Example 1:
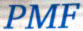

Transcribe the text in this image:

PMF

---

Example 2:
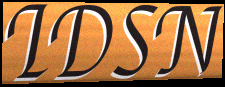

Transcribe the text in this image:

IDSN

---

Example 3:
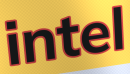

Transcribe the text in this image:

intel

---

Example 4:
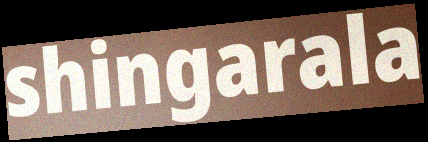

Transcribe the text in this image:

shingarala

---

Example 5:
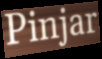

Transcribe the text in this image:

Pinjar